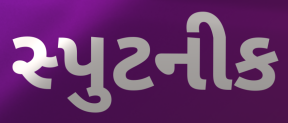
સ્પુટનીક